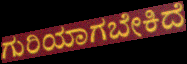
ಗುರಿಯಾಗಬೇಕಿದೆ